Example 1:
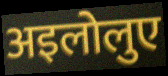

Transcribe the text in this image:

अइलोलुए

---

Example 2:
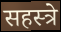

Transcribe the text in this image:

सहस्त्रे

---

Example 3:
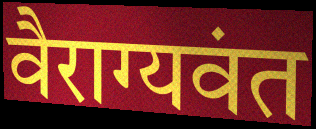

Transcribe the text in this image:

वैराग्यवंत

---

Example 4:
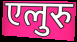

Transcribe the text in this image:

एलुरु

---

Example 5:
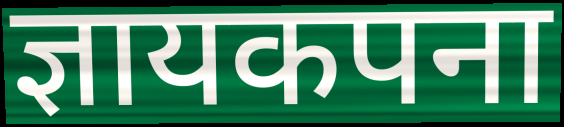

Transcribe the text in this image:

ज्ञायकपना